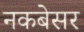
नकबेसर